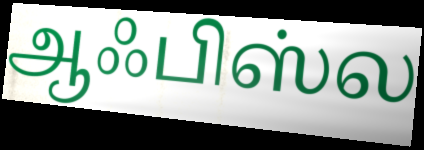
ஆஃபிஸ்ல